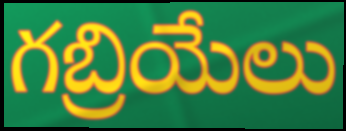
గబ్రియేలు